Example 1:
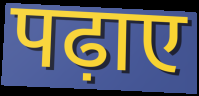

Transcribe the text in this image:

पढ़ाए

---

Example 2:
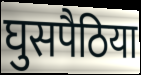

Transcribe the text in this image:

घुसपैठिया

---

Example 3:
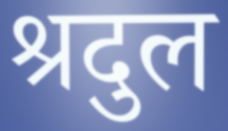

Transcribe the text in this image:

श्रदुल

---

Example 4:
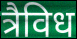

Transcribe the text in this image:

त्रैविध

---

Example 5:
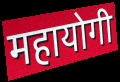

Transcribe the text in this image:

महायोगी